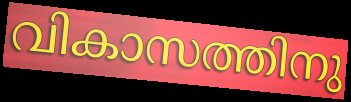
വികാസത്തിനു